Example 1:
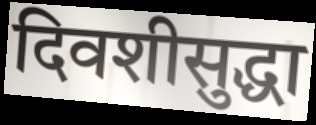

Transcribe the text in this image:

दिवशीसुद्धा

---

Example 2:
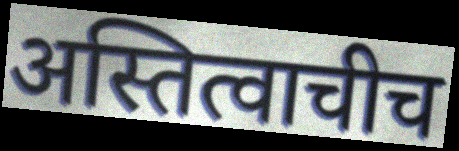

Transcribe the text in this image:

अस्तित्वाचीच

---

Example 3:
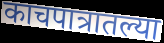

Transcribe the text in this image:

काचपात्रातल्या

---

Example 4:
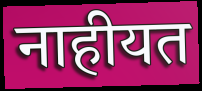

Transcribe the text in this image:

नाहीयत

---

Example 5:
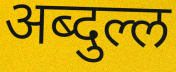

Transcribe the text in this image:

अब्दुल्ल